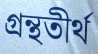
গ্রন্থতীর্থ